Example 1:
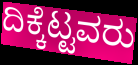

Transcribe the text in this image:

ದಿಕ್ಕೆಟ್ಟವರು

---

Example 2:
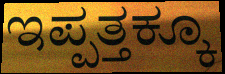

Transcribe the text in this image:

ಇಪ್ಪತ್ತಕ್ಕೂ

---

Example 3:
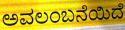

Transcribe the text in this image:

ಅವಲಂಬನೆಯಿದೆ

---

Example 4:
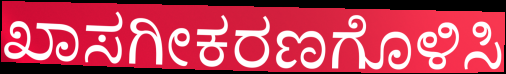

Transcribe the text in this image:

ಖಾಸಗೀಕರಣಗೊಳಿಸಿ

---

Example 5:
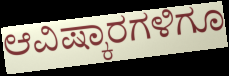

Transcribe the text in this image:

ಆವಿಷ್ಕಾರಗಳಿಗೂ